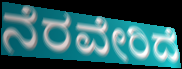
ನೆರವೇರಿದೆ